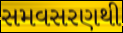
સમવસરણથી